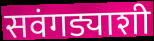
सवंगड्याशी